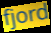
fjord